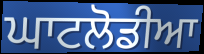
ਘਾਟਲੋਡੀਆ